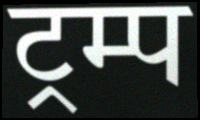
ट्रम्प